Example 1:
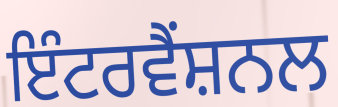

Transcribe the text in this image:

ਇੰਟਰਵੈਂਸ਼ਨਲ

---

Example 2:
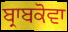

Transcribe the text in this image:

ਬ੍ਰਾਬਕੋਵਾ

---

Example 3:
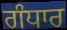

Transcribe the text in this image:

ਗੰਧਾਰ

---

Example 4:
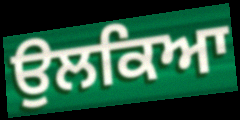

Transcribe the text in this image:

ਉਲਕਿਆ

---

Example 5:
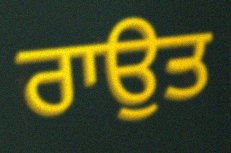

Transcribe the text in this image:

ਰਾਉਤ